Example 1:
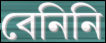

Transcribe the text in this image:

বেনিনি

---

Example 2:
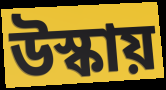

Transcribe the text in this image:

উস্কায়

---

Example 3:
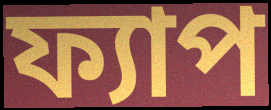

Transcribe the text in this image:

ফ্যাপ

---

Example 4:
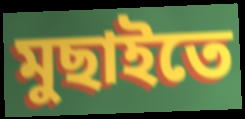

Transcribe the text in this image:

মুছাইতে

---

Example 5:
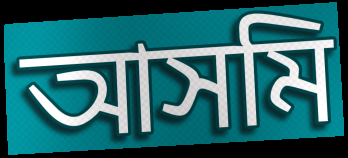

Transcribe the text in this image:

আসমি